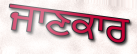
ਜਾਣਕਾਰ